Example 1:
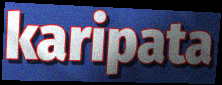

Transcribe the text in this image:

karipata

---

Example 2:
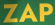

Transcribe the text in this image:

ZAP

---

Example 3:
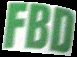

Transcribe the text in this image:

FBD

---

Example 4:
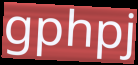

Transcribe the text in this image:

gphpj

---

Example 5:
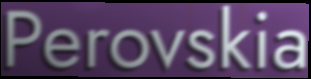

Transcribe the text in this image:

Perovskia